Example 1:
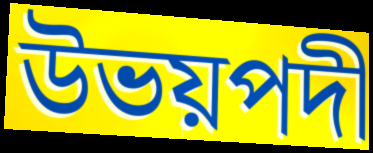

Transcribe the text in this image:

উভয়পদী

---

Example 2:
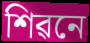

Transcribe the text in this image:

শিৱনে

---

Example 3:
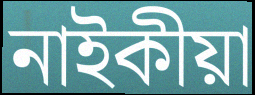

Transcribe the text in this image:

নাইকীয়া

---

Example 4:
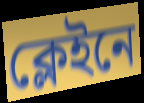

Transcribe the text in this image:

ক্লেইনে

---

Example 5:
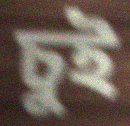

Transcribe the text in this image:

চুই